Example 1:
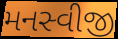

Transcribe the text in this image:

મનસ્વીજી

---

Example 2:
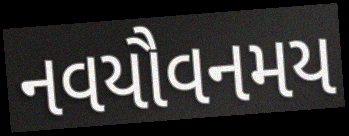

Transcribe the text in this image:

નવયૌવનમય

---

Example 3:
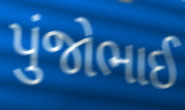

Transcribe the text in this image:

પુંજોભાઈ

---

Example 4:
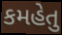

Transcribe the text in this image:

કમહેતુ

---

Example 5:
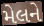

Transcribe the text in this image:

મેલને